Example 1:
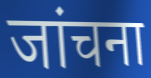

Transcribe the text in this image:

जांचना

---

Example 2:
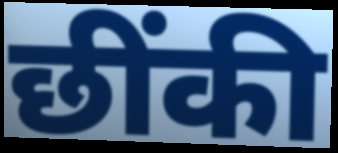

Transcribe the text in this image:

छींकी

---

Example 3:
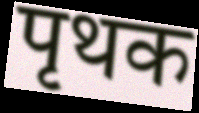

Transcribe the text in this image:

पृथक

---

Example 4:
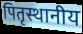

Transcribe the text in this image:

पितृस्थानीय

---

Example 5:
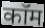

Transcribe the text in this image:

कॉम